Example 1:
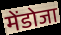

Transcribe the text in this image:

मेंडोजा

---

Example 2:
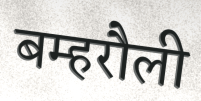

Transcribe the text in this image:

बम्हरौली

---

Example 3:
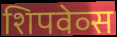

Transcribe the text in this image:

शिपवेव्स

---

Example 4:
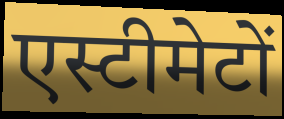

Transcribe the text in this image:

एस्टीमेटों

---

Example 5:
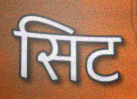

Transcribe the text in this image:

सिट